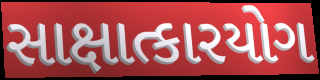
સાક્ષાત્કારયોગ